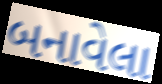
બનાવેલા